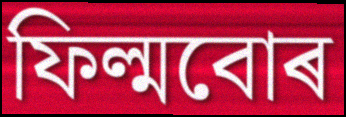
ফিল্মবোৰ